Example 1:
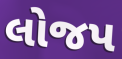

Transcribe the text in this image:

લોજપ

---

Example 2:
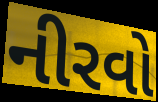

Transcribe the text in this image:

નીરવો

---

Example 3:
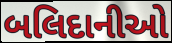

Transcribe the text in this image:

બલિદાનીઓ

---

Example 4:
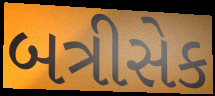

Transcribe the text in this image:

બત્રીસેક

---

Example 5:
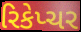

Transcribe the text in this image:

રિકેપ્ચર